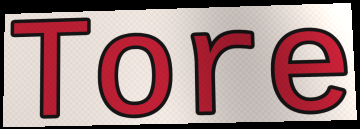
Tore